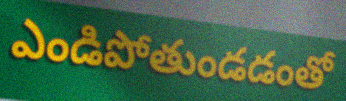
ఎండిపోతుండడంతో